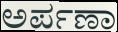
ಅರ್ಪಣಾ